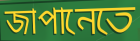
জাপানেতে